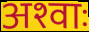
अश्वाः